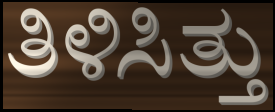
ತಿಳಿಸಿತ್ತು